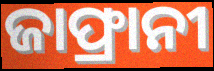
ଜାଫ୍ରାନୀ